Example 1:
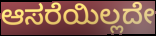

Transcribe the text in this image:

ಆಸರೆಯಿಲ್ಲದೇ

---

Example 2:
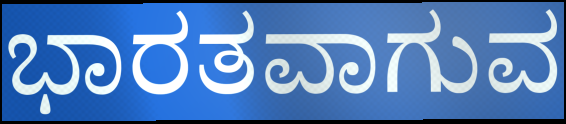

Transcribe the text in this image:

ಭಾರತವಾಗುವ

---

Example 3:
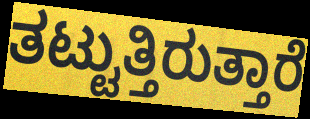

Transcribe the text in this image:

ತಟ್ಟುತ್ತಿರುತ್ತಾರೆ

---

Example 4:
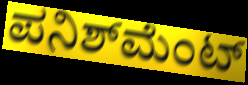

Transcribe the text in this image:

ಪನಿಶ್‌ಮೆಂಟ್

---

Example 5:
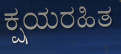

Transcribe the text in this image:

ಕ್ಷಯರಹಿತ